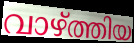
വാഴ്ത്തിയ